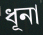
ধূনা